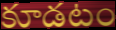
కూడటం